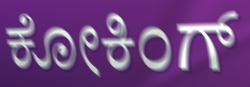
ಕೋಕಿಂಗ್